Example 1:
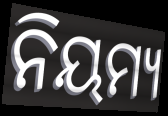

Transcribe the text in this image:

ନିୟମ୍ୟ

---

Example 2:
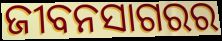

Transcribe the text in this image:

ଜୀବନସାଗରର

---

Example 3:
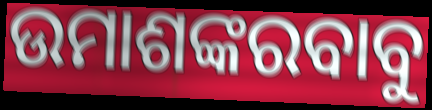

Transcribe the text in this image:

ଉମାଶଙ୍କରବାବୁ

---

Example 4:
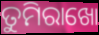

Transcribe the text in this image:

ତୁମିରାଖୋ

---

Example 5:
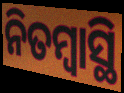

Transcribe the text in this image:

ନିତମ୍ବାସ୍ଥି